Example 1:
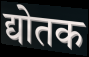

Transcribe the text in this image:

द्योतक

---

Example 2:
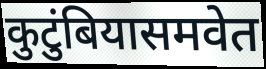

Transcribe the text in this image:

कुटुंबियासमवेत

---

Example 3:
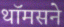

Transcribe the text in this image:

थॉमसने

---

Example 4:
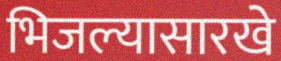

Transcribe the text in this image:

भिजल्यासारखे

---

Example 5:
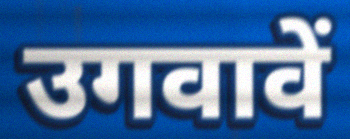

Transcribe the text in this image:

उगवावें